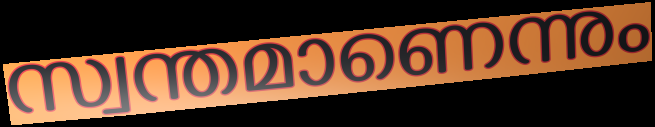
സ്വന്തമാണെന്നും